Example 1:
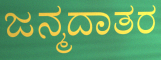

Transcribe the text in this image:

ಜನ್ಮದಾತರ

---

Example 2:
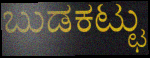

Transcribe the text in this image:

ಬುಡಕಟ್ಟು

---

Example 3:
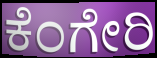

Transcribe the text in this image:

ಕೆಂಗೇರಿ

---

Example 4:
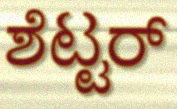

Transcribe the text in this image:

ಶೆಟ್ಟರ್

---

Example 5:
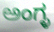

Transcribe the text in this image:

ಅಂಗ್ಳ